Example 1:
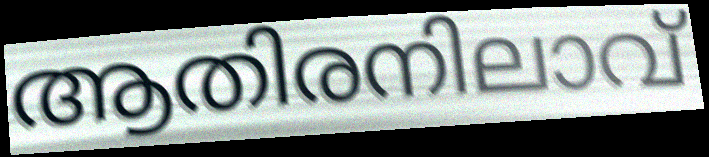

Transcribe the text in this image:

ആതിരനിലാവ്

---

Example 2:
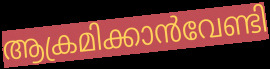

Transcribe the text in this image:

ആക്രമിക്കാൻവേണ്ടി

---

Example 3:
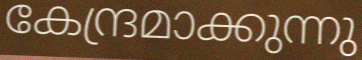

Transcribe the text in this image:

കേന്ദ്രമാക്കുന്നു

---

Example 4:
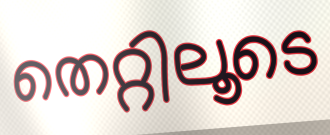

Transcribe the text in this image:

തെറ്റിലൂടെ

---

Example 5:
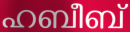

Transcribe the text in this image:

ഹബീബ്